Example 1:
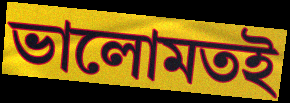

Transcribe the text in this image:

ভালোমতই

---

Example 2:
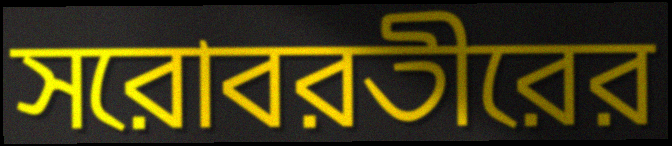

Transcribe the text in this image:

সরোবরতীরের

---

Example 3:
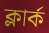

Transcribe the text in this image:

ক্লার্ক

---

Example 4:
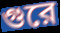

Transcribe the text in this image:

গুরে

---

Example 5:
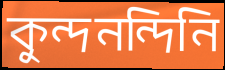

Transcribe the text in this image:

কুন্দনন্দিনি